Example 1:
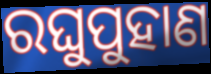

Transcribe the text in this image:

ରଘୁପୁହାଣ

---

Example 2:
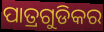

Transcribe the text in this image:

ପାତ୍ରଗୁଡିକର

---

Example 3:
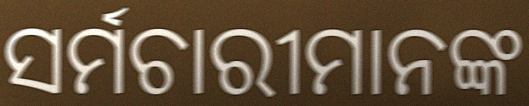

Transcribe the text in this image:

ସର୍ମଚାରୀମାନଙ୍କ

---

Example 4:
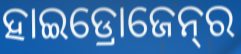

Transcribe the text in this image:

ହାଇଡ୍ରୋଜେନ୍‌ର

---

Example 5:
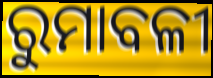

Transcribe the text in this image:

ରୁମାବଳୀ